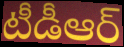
టీడీఆర్